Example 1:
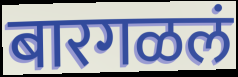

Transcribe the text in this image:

बारगळलं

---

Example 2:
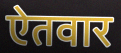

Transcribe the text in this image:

ऐतवार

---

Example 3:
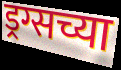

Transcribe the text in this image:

ड्रग्सच्या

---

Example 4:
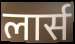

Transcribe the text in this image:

लार्स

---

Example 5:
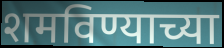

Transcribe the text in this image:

शमविण्याच्या